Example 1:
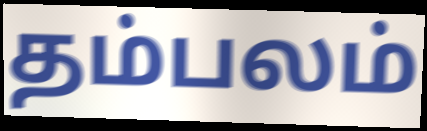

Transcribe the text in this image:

தம்பலம்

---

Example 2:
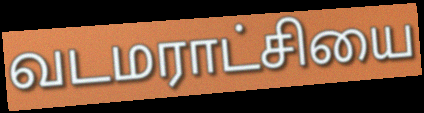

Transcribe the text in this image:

வடமராட்சியை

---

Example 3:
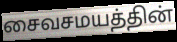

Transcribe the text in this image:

சைவசமயத்தின்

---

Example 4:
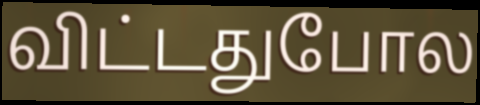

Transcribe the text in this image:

விட்டதுபோல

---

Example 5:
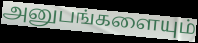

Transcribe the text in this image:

அனுபங்களையும்